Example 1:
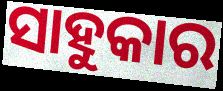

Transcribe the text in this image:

ସାହୁକାର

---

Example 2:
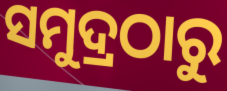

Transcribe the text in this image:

ସମୁଦ୍ରଠାରୁ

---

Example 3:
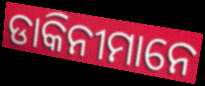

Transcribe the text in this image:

ଡାକିନୀମାନେ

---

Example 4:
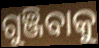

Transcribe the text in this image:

ଗୁଞ୍ଜିବାକୁ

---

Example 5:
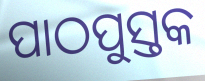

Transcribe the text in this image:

ପାଠପୁସ୍ତକ